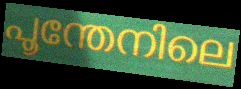
പൂന്തേനിലെ